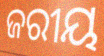
ଜରୀୟ